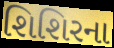
શિશિરના